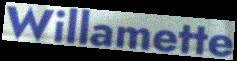
Willamette